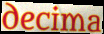
decima